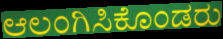
ಆಲಂಗಿಸಿಕೊಂಡರು